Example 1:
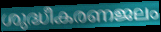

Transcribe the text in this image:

ശുദ്ധീകരണജലം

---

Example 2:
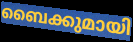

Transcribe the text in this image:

ബൈക്കുമായി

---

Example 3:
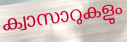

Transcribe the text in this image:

ക്വാസാറുകളും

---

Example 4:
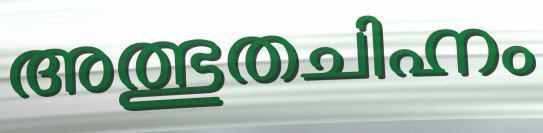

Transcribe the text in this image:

അത്ഭുതചിഹ്നം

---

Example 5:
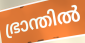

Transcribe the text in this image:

ഭ്രാന്തിൽ